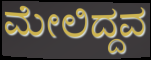
ಮೇಲಿದ್ದವ